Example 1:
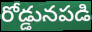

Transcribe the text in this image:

రోడ్డునపడి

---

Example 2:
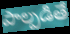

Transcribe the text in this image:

పాల్పడితే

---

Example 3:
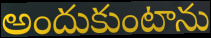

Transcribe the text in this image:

అందుకుంటాను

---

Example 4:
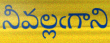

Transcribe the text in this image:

నీవల్లఁగాని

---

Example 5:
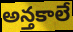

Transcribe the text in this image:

అన్తకాలే